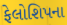
ફેલોશિપના